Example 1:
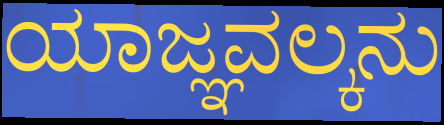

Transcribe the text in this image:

ಯಾಜ್ಞವಲ್ಕನು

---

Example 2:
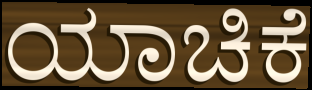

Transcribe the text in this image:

ಯಾಚಿಕೆ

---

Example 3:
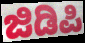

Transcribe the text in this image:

ಜಿಡಿಪಿ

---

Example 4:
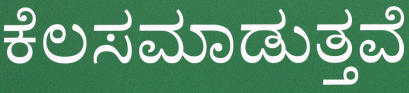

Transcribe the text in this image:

ಕೆಲಸಮಾಡುತ್ತವೆ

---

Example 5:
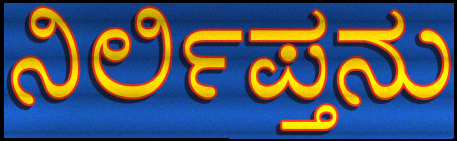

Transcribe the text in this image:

ನಿರ್ಲಿಪ್ತನು